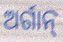
ଅର୍ଗାନ୍